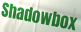
Shadowbox